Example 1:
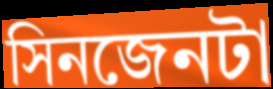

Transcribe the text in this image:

সিনজেনটা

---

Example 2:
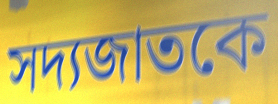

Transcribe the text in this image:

সদ্যজাতকে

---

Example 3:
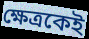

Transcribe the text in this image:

ক্ষেত্রকেই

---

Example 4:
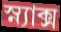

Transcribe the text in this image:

স্ন্যাক্স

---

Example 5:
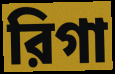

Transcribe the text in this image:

রিগা